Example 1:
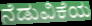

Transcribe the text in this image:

ನೆಡುವಿಕೆಯ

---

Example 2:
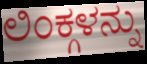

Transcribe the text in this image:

ಲಿಂಕ್ಗಳನ್ನು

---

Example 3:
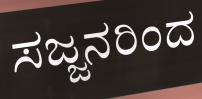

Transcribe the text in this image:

ಸಜ್ಜನರಿಂದ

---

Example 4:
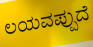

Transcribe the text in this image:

ಲಯವಪ್ಪುದೆ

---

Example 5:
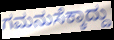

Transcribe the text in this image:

ಗಮನುಸೆಕ್ಕಾದ್ದು